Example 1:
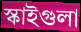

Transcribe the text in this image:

স্কাইগুলা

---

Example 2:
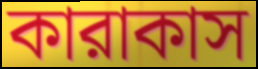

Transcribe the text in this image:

কারাকাস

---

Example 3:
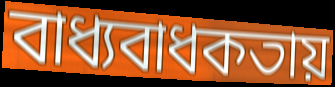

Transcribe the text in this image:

বাধ্যবাধকতায়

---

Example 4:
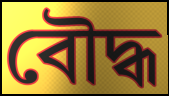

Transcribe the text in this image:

বৌদ্ধ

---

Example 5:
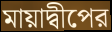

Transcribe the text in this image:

মায়াদ্বীপের